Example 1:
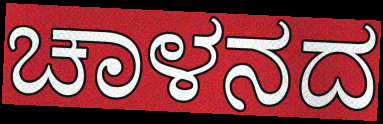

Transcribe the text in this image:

ಚಾಳನದ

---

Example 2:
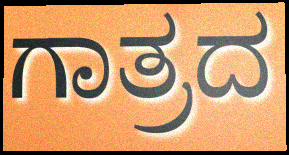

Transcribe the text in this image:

ಗಾತ್ರದ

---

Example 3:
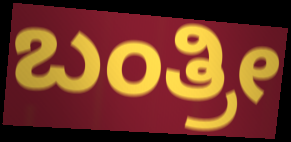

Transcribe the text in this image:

ಬಂತ್ರೀ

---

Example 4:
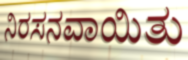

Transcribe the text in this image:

ನಿರಸನವಾಯಿತು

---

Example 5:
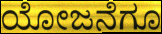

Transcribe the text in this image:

ಯೋಜನೆಗೂ